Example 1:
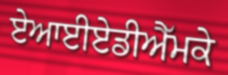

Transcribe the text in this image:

ਏਆਈਏਡੀਐੱਮਕੇ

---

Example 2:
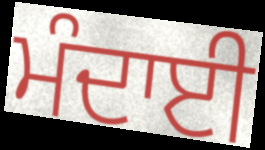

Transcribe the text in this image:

ਮੰਦਾਈ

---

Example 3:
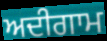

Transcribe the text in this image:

ਅਦੀਗਾਮ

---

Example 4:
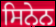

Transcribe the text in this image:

ਸਿਨੇਨ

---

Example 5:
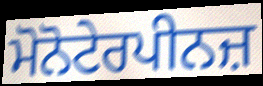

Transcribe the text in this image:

ਮੋਨੋਟੇਰਪੀਨਜ਼